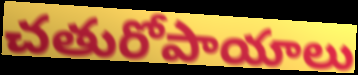
చతురోపాయాలు